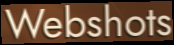
Webshots